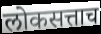
लोकसत्ताच